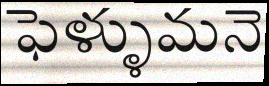
ఫెళ్ళుమనె